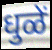
धुळें